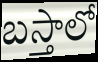
బస్తాలో